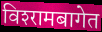
विश्रामबागेत